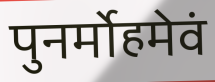
पुनर्मोहमेवं